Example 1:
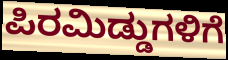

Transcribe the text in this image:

ಪಿರಮಿಡ್ಡುಗಳಿಗೆ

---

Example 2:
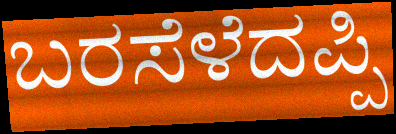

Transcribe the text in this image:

ಬರಸೆಳೆದಪ್ಪಿ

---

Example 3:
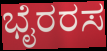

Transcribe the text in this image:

ಭೈರರಸ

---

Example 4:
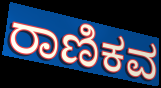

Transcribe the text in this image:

ರಾಣಿಕವ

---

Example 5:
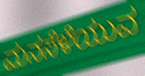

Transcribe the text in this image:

ಮನಸೆಳೆಯುವ